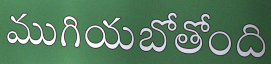
ముగియబోతోంది